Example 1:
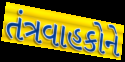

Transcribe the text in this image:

તંત્રવાહકોને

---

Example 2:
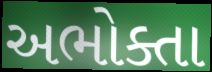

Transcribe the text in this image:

અભોક્તા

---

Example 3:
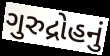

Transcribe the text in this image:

ગુરુદ્રોહનું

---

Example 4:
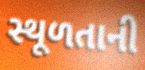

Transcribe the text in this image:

સ્થૂળતાની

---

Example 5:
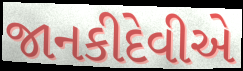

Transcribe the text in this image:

જાનકીદેવીએ